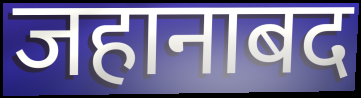
जहानाबद